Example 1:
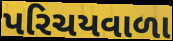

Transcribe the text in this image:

પરિચયવાળા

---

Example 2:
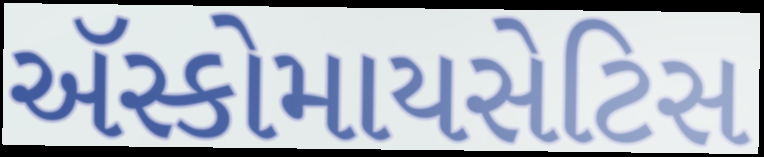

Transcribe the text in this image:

ઍસ્કોમાયસેટિસ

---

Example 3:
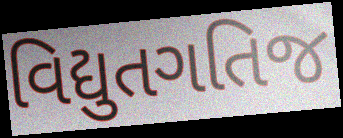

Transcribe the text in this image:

વિદ્યુતગતિજ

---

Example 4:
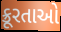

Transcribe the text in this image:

ક્રૂરતાઓ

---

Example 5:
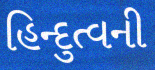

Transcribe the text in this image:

હિન્દુત્વની